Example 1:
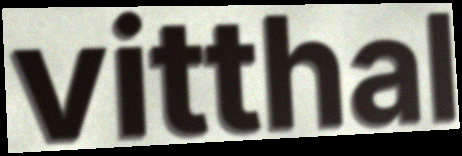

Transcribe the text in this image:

vitthal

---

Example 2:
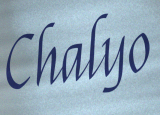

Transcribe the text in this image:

Chalyo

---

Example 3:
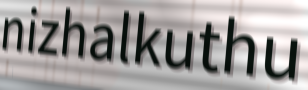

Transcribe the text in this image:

nizhalkuthu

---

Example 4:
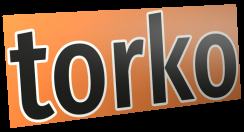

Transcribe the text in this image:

torko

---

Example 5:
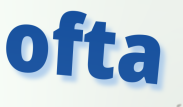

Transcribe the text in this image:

ofta